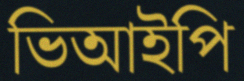
ভিআইপি